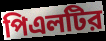
পিএলটির